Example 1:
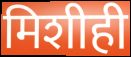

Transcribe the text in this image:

मिशीही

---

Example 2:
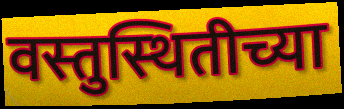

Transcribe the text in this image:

वस्तुस्थितीच्या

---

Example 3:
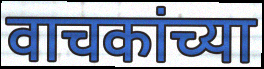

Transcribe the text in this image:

वाचकांच्या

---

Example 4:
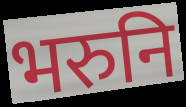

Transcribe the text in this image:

भरुनि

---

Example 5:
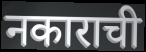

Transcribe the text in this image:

नकाराची